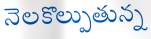
నెలకొల్పుతున్న